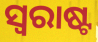
ସ୍ୱରାଷ୍ଟ